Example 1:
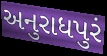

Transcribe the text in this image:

અનુરાધપુરં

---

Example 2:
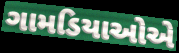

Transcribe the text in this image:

ગામડિયાઓએ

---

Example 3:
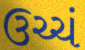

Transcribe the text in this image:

ઉચ્ચં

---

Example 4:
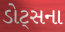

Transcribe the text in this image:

ડોટ્સના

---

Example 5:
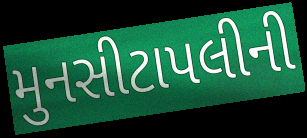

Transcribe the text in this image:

મુનસીટાપલીની